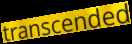
transcended